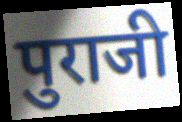
पुराजी